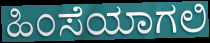
ಹಿಂಸೆಯಾಗಲಿ